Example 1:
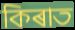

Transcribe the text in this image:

কিৰাত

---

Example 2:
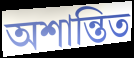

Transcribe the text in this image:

অশান্তিত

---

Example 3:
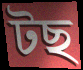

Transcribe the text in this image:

টছ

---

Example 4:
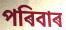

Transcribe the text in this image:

পৰিবাৰ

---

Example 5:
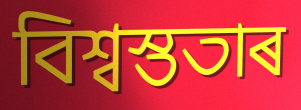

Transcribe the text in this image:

বিশ্বস্ততাৰ